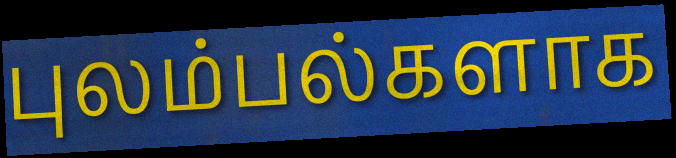
புலம்பல்களாக